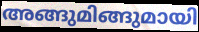
അങ്ങുമിങ്ങുമായി